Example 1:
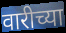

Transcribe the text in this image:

वारीच्या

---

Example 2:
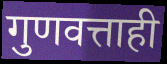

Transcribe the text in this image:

गुणवत्ताही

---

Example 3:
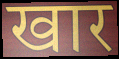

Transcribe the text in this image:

खार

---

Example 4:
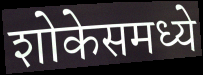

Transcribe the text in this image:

शोकेसमध्ये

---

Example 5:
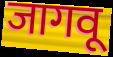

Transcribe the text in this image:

जागवू